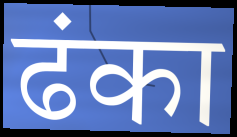
ढंका